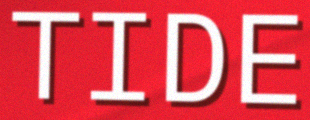
TIDE